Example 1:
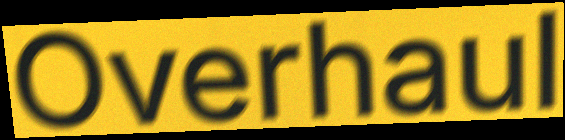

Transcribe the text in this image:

Overhaul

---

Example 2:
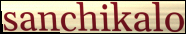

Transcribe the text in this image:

sanchikalo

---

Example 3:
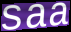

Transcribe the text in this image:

saa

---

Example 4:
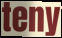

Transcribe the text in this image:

teny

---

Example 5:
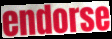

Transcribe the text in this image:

endorse